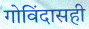
गोविंदासही